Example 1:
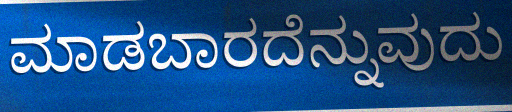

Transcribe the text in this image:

ಮಾಡಬಾರದೆನ್ನುವುದು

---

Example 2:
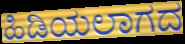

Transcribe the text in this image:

ಹಿಡಿಯಲಾಗದ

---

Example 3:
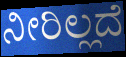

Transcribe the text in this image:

ನೀರಿಲ್ಲದೆ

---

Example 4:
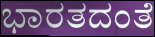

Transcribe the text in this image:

ಭಾರತದಂತೆ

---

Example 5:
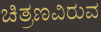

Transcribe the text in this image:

ಚಿತ್ರಣವಿರುವ